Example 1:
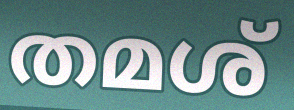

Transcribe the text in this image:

തമശ്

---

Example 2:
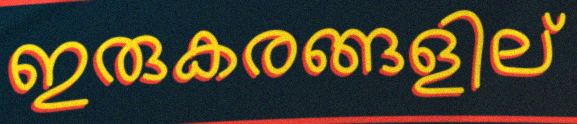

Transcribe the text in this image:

ഇരുകരങ്ങളില്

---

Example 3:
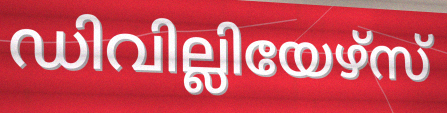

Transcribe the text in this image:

ഡിവില്ലിയേഴ്സ്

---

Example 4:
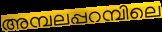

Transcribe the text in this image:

അമ്പലപ്പറമ്പിലെ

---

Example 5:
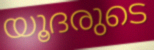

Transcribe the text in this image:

യൂദരുടെ